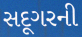
સદૂગરની